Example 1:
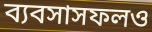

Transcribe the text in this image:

ব্যবসাসফলও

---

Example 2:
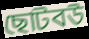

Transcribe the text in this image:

ছোটবউ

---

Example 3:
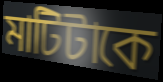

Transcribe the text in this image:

মাটিটাকে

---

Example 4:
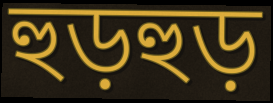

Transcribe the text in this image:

হুড়হুড়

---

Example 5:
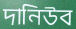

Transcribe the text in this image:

দানিউব